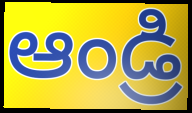
ఆండ్రి